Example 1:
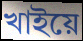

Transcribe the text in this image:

খাইয়ে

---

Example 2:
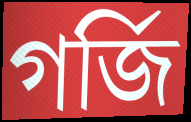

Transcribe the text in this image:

গৰ্জি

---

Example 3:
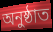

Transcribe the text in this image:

অনুষ্ঠাত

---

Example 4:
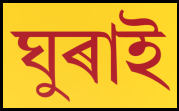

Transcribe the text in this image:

ঘুৰাই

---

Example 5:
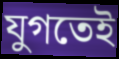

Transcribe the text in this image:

যুগতেই